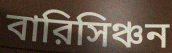
বারিসিঞ্চন